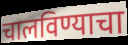
चालविण्याचा